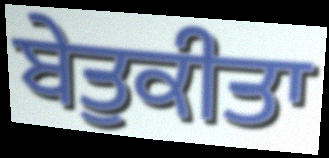
ਬੇਤੁਕੀਤਾ